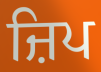
ਜ਼ਿਪ